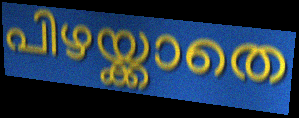
പിഴയ്ക്കാതെ